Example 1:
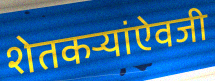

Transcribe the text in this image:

शेतकऱ्यांऐवजी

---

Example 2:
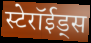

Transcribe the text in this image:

स्टेरॉईड्स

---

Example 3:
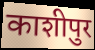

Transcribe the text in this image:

काशीपुर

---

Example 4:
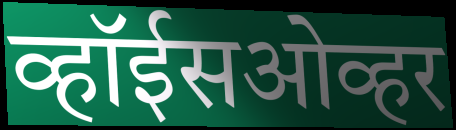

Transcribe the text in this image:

व्हॉईसओव्हर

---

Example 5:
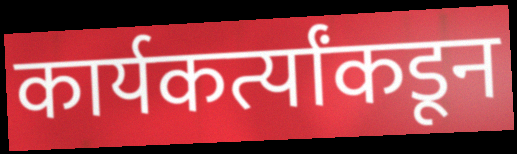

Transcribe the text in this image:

कार्यकर्त्यांकडून